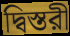
দ্বিস্তরী